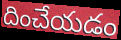
దించేయడం